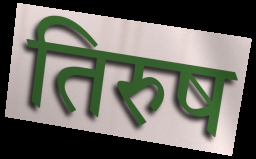
तिरुष